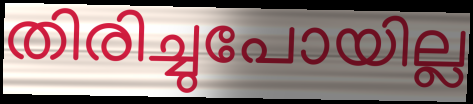
തിരിച്ചുപോയില്ല